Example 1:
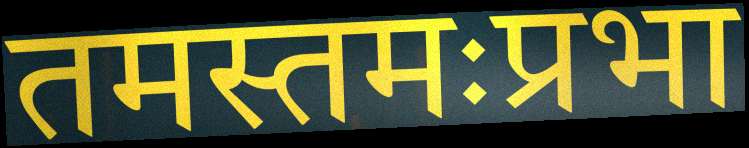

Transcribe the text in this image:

तमस्तमःप्रभा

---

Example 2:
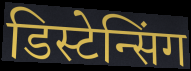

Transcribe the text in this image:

डिस्टेन्सिंग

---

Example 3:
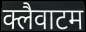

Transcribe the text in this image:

क्लैवाटम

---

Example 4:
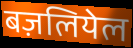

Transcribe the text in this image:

बज़लियेल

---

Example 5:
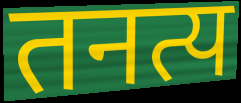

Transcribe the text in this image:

तनत्य